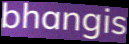
bhangis